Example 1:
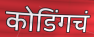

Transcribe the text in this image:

कोडिंगचं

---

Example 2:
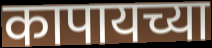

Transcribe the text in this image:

कापायच्या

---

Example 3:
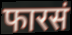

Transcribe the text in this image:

फारसं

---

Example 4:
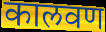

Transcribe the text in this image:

कालवण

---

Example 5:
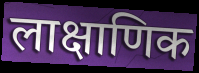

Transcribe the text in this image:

लाक्षाणिक